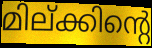
മില്ക്കിന്റെ